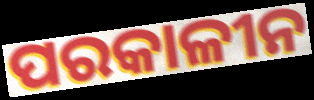
ପରକାଳୀନ